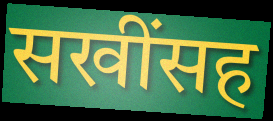
सखींसह